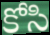
కోసి